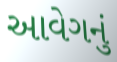
આવેગનું